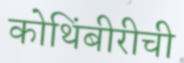
कोथिंबीरीची